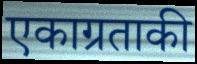
एकाग्रताकी